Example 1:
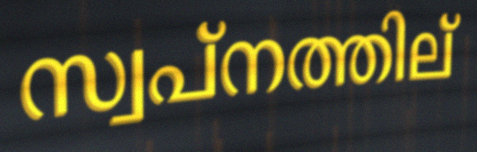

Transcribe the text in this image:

സ്വപ്നത്തില്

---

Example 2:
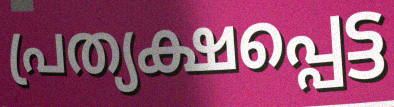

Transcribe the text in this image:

പ്രത്യക്ഷപ്പെട്ട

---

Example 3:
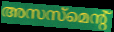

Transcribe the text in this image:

അസസ്മെന്റ്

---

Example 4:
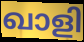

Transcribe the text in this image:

ഖാളി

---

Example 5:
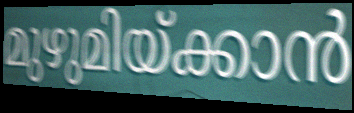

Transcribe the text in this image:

മുഴുമിയ്ക്കാൻ